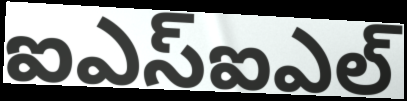
ఐఎస్ఐఎల్